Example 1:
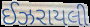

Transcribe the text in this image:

ઈઝરાયલી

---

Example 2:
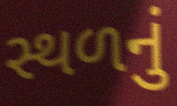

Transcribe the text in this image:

સ્થળનું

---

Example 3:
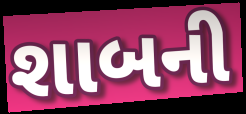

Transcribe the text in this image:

શાબની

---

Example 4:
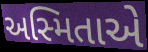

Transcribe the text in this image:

અસ્મિતાએ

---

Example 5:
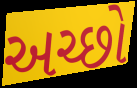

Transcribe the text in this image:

અચ્છો